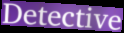
Detective